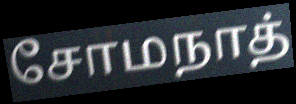
சோமநாத்